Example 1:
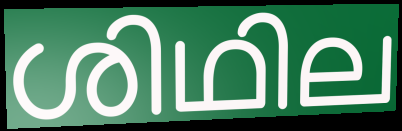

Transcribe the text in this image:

ശിഥില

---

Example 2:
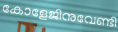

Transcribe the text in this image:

കോളേജിനുവേണ്ടി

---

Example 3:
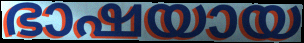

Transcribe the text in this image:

ഭാഷയായ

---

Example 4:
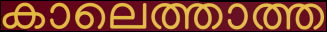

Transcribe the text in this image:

കാലെത്താത്ത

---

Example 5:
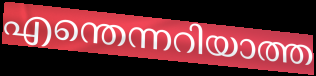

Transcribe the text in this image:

എന്തെന്നറിയാത്ത